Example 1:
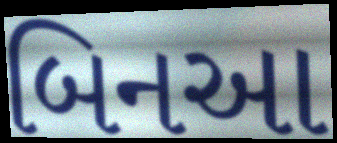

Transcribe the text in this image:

બિનઆ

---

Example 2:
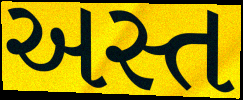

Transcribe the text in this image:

અસ્ત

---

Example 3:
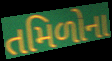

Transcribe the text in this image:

તમિળોના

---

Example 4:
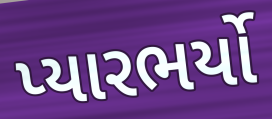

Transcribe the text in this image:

પ્યારભર્યો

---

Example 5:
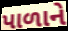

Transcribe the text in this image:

પાળાને